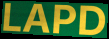
LAPD